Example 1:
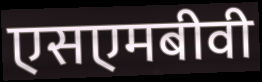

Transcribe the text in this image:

एसएमबीवी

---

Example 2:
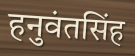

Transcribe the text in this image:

हनुवंतसिंह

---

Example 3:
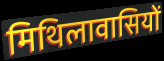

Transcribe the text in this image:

मिथिलावासियों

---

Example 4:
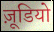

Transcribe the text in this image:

ज़ूडियो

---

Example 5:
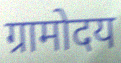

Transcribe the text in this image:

ग्रामोदय